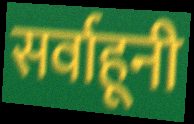
सर्वाहूनी